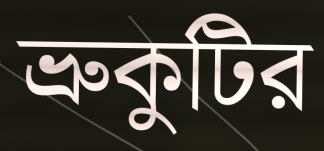
ভ্রুকুটির